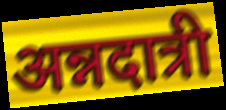
अन्नदात्री